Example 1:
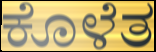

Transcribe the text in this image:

ಕೊಳೆತ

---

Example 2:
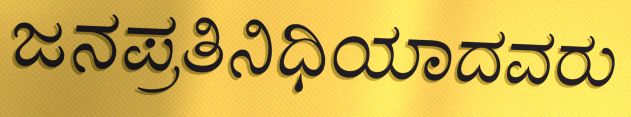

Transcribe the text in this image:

ಜನಪ್ರತಿನಿಧಿಯಾದವರು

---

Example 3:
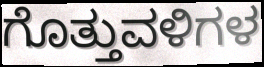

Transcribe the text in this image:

ಗೊತ್ತುವಳಿಗಳ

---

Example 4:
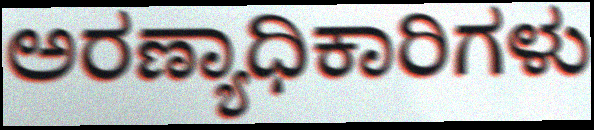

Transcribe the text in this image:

ಅರಣ್ಯಾಧಿಕಾರಿಗಳು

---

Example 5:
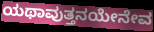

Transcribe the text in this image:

ಯಥಾವುತ್ತನಯೇನೇವ